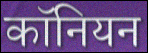
कॉनियन